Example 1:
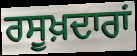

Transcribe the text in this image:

ਰਸੂਖ਼ਦਾਰਾਂ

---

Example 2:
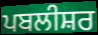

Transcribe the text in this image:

ਪਬਲੀਸ਼ਰ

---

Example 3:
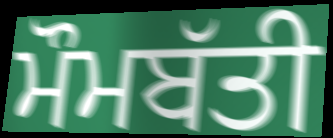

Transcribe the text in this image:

ਮੌਮਬੱਤੀ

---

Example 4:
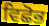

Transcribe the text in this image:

ਵਿਛੋਭ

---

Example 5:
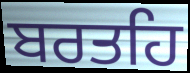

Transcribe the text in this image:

ਬਰਤਹਿ